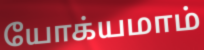
யோக்யமாம்